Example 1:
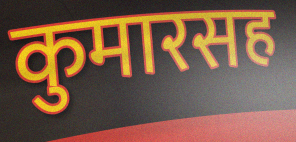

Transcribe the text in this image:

कुमारसह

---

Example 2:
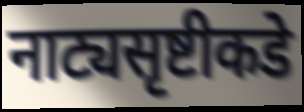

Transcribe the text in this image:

नाट्यसृष्टीकडे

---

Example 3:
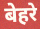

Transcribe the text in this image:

बेहरे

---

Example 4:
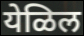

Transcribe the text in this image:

येळिल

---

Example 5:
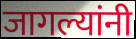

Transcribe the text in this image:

जागल्यांनी